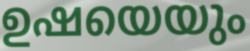
ഉഷയെയും